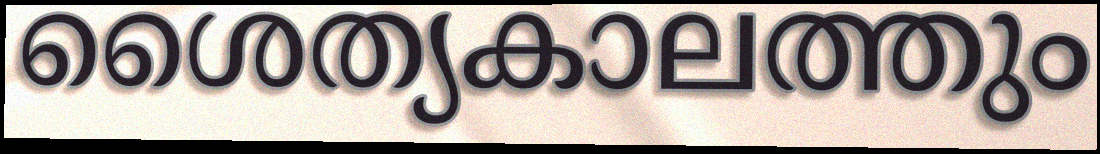
ശൈത്യകാലത്തും